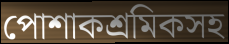
পোশাকশ্রমিকসহ